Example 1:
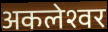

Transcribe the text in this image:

अकलेश्वर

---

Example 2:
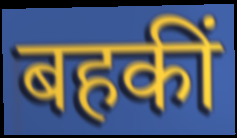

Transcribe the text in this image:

बहकीं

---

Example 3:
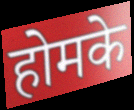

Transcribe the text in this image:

होमके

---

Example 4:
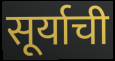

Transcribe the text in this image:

सूर्याची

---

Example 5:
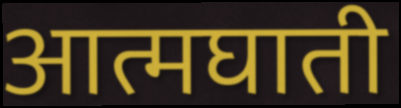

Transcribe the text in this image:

आत्मघाती